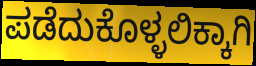
ಪಡೆದುಕೊಳ್ಳಲಿಕ್ಕಾಗಿ